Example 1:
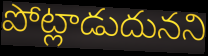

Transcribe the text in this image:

పోట్లాడుదునని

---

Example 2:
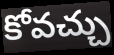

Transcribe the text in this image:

కోవచ్చు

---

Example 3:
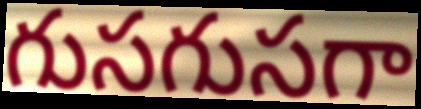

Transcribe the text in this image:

గుసగుసగా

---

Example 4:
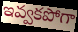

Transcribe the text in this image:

ఇవ్వకపోగా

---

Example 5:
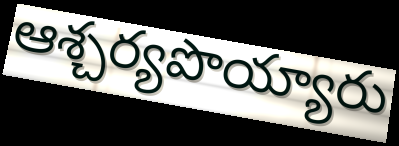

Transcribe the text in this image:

ఆశ్చర్యపొయ్యారు